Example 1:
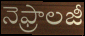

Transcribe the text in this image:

నెఫ్రాలజీ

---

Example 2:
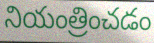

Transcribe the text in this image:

నియంత్రించడం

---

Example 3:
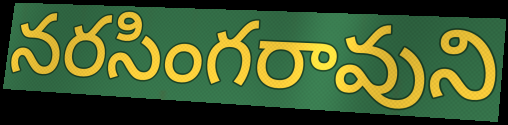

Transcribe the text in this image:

నరసింగరావుని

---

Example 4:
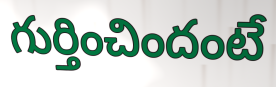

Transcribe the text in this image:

గుర్తించిందంటే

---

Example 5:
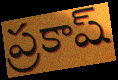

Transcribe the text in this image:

ప్రకాష్